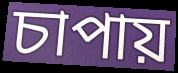
চাপায়